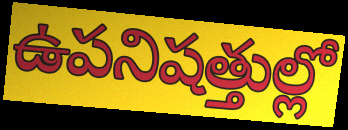
ఉపనిషత్తుల్లో